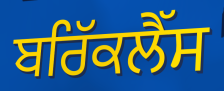
ਬਰਿੱਕਲੈੱਸ